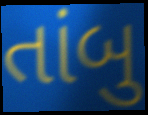
તાંબુ